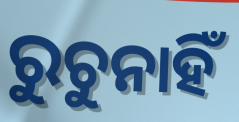
ରୁଚୁନାହିଁ